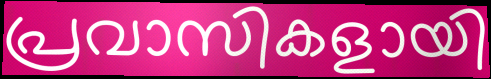
പ്രവാസികളായി